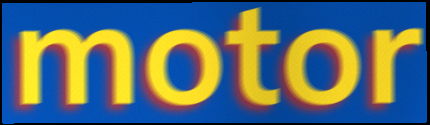
motor